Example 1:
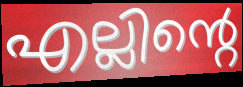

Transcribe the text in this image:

എല്ലിന്റെ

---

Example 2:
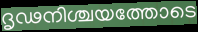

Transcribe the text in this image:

ദൃഢനിശ്ചയത്തോടെ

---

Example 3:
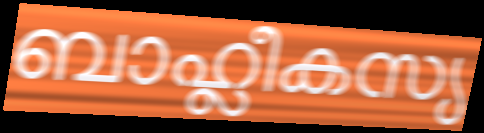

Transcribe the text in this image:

ബാഹ്ലീകസ്യ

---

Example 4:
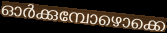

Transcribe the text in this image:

ഓർക്കുമ്പോഴൊക്കെ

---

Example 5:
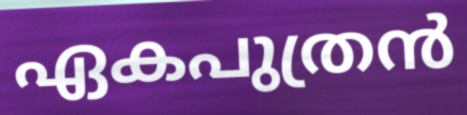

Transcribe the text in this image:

ഏകപുത്രൻ